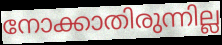
നോക്കാതിരുന്നില്ല